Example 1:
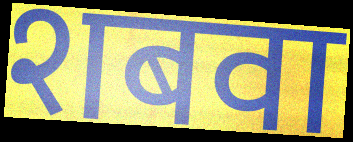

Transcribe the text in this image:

शबवा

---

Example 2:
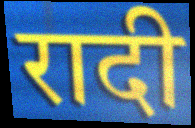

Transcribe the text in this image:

रादी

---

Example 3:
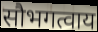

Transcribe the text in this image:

सौभगत्वाय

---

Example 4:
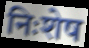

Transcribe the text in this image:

निःशेष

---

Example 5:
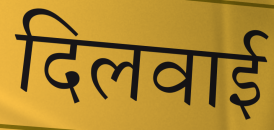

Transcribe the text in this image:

दिलवाई